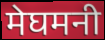
मेघमनी